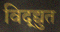
विद्द्युत